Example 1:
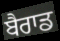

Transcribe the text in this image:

ਬੈਰਾਡ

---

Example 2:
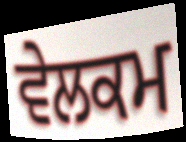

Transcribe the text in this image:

ਵੇਲਕਮ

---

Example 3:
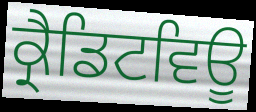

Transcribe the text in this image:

ਕ੍ਰੈਡਿਟਵਿਊ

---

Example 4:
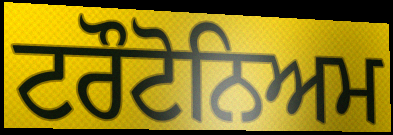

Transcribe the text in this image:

ਟਰੌਟੋਨਿਅਮ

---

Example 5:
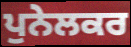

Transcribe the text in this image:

ਪੁਨੇਲਕਰ